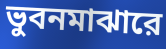
ভুবনমাঝারে